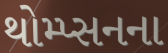
થોમ્પ્સનના